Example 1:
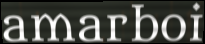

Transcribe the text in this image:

amarboi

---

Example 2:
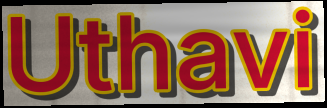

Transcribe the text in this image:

Uthavi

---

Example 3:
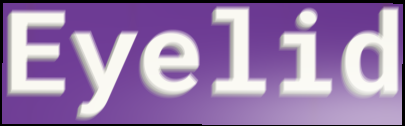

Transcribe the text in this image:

Eyelid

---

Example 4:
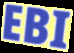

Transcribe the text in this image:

EBI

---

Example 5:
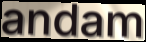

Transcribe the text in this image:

andam